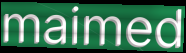
maimed